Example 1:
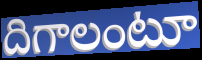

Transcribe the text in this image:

దిగాలంటూ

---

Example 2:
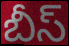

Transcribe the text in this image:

బీస్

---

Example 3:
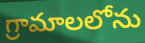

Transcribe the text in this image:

గ్రామాలలోను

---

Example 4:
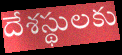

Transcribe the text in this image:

దేశస్థులకు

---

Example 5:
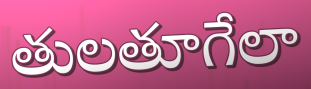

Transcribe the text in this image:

తులతూగేలా